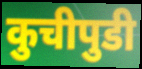
कुचीपुडी